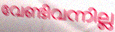
വേണ്ടിവന്നില്ല